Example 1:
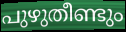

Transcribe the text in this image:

പുഴുതീണ്ടും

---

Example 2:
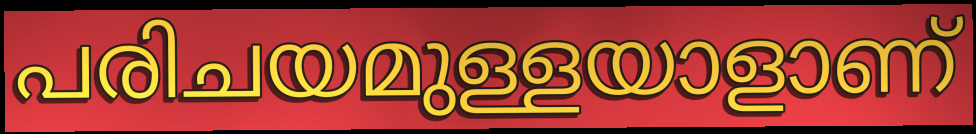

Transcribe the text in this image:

പരിചയമുള്ളയാളാണ്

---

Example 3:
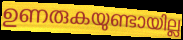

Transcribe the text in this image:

ഉണരുകയുണ്ടായില്ല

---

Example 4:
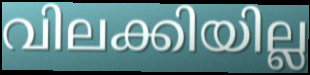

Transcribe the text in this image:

വിലക്കിയില്ല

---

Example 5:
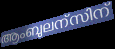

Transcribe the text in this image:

ആംബുലന്സിന്